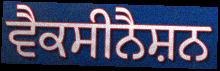
ਵੈਕਸੀਨੈਸ਼ਨ